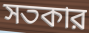
সতকার